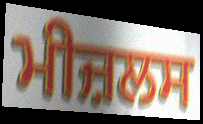
ਮੀਜ਼ਲਸ